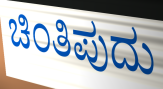
ಚಿಂತಿಪುದು